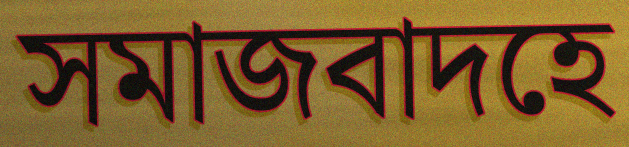
সমাজবাদহে